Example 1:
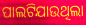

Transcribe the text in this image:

ପାଲଟିଯାଉଥିଲା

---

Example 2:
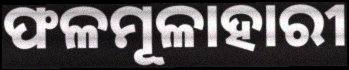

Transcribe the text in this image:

ଫଳମୂଳାହାରୀ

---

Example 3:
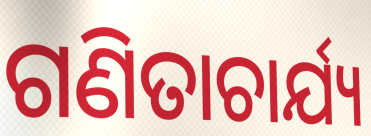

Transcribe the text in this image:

ଗଣିତାଚାର୍ଯ୍ୟ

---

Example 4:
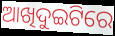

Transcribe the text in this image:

ଆଖିଦୁଇଟିରେ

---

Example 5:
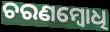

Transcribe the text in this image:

ଚରଣମ୍ବୋଧି